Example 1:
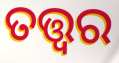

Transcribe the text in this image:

ତତ୍ତ୍ଵର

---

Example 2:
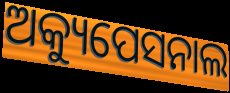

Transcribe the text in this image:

ଅକ୍ୟୁପେସନାଲ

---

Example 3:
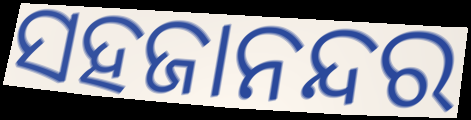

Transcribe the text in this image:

ସହଜାନନ୍ଦର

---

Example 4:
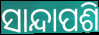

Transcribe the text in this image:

ସାନ୍ଦାପଶି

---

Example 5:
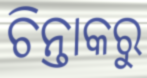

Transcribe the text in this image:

ଚିନ୍ତାକରୁ